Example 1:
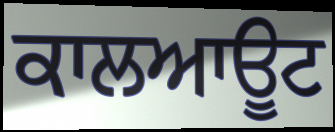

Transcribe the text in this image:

ਕਾਲਆਊਟ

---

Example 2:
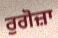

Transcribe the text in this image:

ਰੁਗੋਜ਼ਾ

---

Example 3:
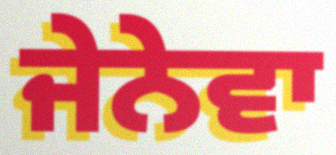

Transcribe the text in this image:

ਜੇਨੇਵਾ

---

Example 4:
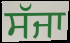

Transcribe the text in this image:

ਸੱਜਾ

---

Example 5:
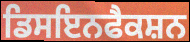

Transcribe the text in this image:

ਡਿਸਇਨਫੈਕਸ਼ਨ